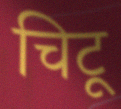
चिटू